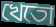
খেতো